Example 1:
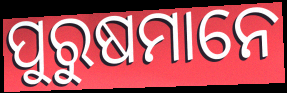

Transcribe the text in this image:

ପୁରୁଷମାନେ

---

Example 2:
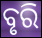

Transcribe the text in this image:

ବୃରି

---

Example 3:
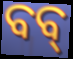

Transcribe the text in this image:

ବବ୍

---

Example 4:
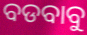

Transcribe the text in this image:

ବଡବାବୁ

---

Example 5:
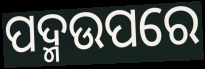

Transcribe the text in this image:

ପଦ୍ମଉପରେ